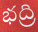
భద్రి